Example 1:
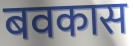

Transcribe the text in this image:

बवकास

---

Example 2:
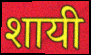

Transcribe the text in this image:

शायी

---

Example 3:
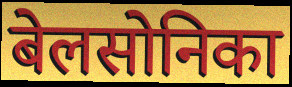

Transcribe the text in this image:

बेलसोनिका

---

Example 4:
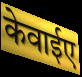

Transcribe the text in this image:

केवाईए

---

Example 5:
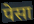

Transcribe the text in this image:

पेसा